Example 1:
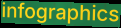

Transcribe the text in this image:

infographics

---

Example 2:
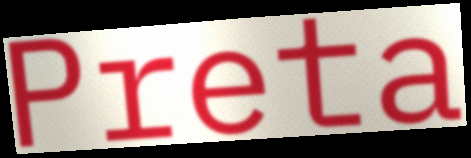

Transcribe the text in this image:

Preta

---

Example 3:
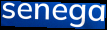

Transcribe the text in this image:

senega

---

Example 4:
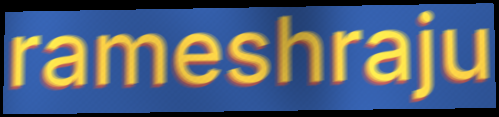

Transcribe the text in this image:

rameshraju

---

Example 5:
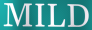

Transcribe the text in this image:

MILD